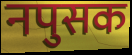
नपुसक